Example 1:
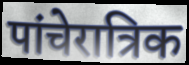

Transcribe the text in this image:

पांचेरात्रिक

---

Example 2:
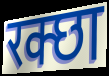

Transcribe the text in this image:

रक्छा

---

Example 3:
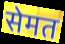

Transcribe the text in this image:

सेमत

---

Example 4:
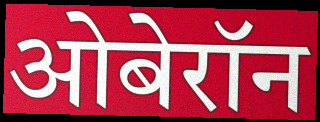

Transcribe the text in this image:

ओबेरॉन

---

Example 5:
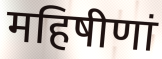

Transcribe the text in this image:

महिषीणां